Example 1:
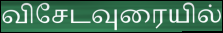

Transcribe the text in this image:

விசேடவுரையில்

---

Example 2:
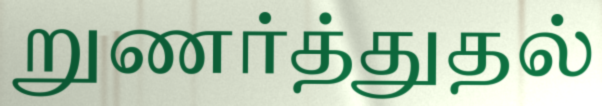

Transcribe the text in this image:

றுணர்த்துதல்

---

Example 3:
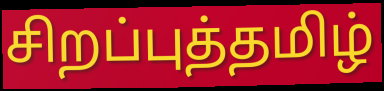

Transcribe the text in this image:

சிறப்புத்தமிழ்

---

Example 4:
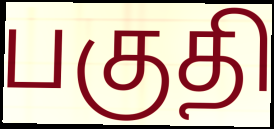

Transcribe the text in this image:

பகுதி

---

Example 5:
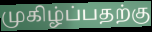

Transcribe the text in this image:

முகிழ்ப்பதற்கு